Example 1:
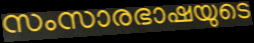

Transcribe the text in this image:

സംസാരഭാഷയുടെ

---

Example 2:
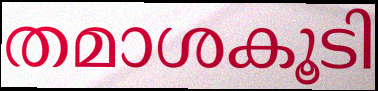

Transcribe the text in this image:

തമാശകൂടി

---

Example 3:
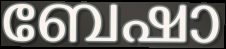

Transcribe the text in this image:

ബേഷാ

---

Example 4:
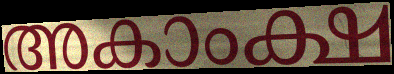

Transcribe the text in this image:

അകാംക്ഷ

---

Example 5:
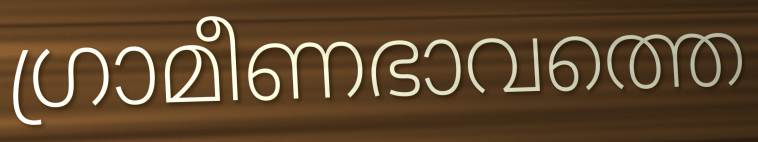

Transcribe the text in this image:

ഗ്രാമീണഭാവത്തെ